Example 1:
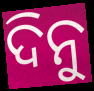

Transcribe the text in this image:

ଦିନୁ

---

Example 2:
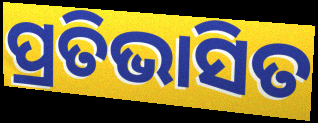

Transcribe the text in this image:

ପ୍ରତିଭାସିତ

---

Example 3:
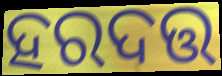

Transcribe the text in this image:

ହରଦତ୍ତ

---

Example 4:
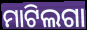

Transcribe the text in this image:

ମାଟିଲଗା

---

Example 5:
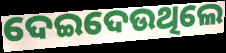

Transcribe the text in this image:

ଦେଇଦେଉଥିଲେ